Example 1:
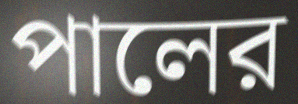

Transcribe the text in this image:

পালের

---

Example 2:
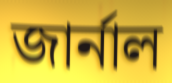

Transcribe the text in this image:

জার্নাল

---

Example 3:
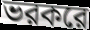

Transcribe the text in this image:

ভরকরে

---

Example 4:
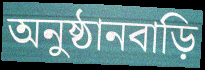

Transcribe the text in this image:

অনুষ্ঠানবাড়ি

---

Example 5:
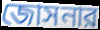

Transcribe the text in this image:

জোসনার